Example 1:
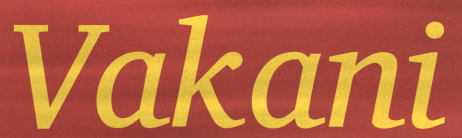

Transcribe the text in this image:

Vakani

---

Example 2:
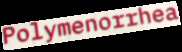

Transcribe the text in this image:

Polymenorrhea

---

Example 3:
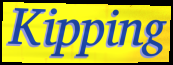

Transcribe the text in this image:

Kipping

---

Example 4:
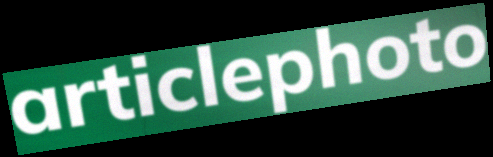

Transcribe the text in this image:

articlephoto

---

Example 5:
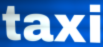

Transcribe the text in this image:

taxi